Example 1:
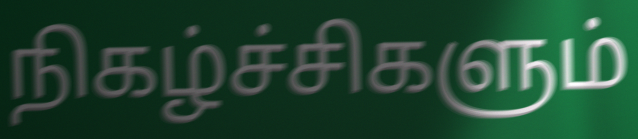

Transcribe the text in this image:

நிகழ்ச்சிகளும்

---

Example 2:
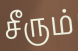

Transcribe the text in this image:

சீரும்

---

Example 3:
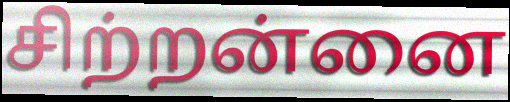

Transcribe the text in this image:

சிற்றன்னை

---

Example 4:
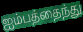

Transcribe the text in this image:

ஐம்பத்தைந்து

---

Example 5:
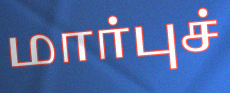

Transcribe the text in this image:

மார்புச்